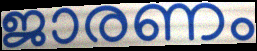
ജാരണം